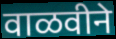
वाळवीने